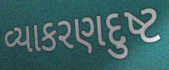
વ્યાકરણદુષ્ટ